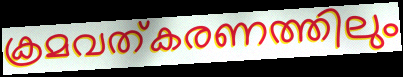
ക്രമവത്കരണത്തിലും